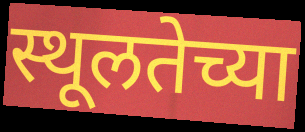
स्थूलतेच्या